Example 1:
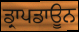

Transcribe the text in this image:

ਡ੍ਰਾਪਡਾਊਨ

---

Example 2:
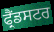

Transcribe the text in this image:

ਫ੍ਰੈਂਡਸਟਰ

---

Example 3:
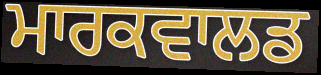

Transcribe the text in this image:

ਮਾਰਕਵਾਲਡ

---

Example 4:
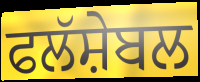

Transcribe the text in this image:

ਫਲੱਸ਼ੇਬਲ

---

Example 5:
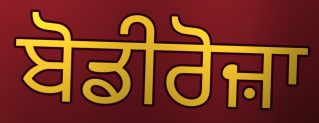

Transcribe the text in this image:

ਬੋਡੀਰੋਜ਼ਾ